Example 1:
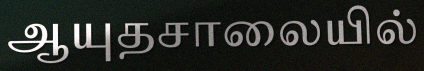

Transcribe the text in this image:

ஆயுதசாலையில்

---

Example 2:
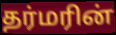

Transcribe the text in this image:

தர்மரின்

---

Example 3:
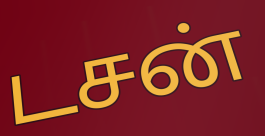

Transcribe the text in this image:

டசன்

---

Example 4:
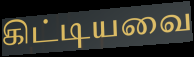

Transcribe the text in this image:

கிட்டியவை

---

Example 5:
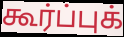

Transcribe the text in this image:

கூர்ப்புக்